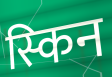
स्‍किन